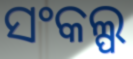
ସଂକଲ୍ପ